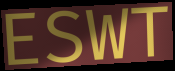
ESWT